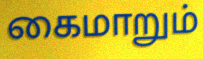
கைமாறும்